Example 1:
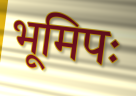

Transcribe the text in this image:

भूमिपः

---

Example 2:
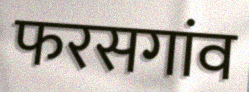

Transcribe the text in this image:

फरसगांव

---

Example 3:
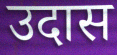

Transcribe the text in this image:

उदास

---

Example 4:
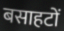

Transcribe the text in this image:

बसाहटों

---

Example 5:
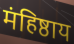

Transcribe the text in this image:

मंहिष्ठाय